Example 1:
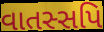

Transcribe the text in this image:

વાતસ્સપિ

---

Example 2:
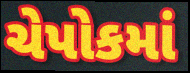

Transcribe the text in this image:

ચેપોકમાં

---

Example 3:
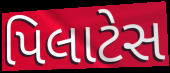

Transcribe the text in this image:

પિલાટેસ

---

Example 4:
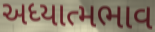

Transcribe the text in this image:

અધ્યાત્મભાવ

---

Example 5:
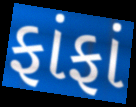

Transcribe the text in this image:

ફાંફાં